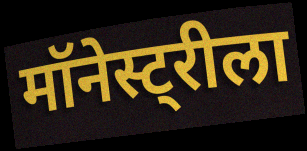
मॉनेस्ट्रीला